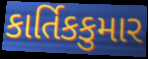
કાર્તિકકુમાર